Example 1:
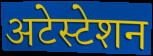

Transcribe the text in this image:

अटेस्टेशन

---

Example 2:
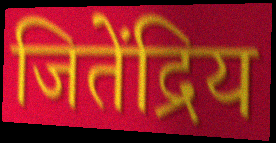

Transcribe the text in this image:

जितेंद्रिय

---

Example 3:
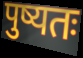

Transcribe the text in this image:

पुष्यतः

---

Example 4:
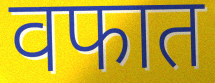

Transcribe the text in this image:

वफात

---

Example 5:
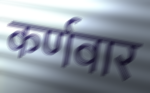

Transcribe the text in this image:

कर्णवार